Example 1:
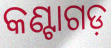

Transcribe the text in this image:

କଣ୍ଟାଗଡ଼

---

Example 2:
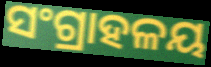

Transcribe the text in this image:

ସଂଗ୍ରାହଳୟ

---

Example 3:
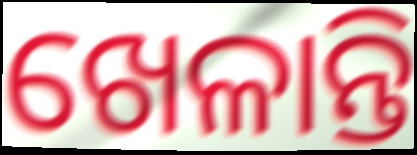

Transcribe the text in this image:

ଖେଳାନ୍ତି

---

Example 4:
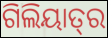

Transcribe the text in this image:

ଗିଲିୟାତ୍‍ର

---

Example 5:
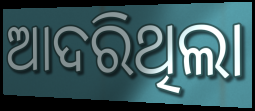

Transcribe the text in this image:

ଆଦରିଥିଲା